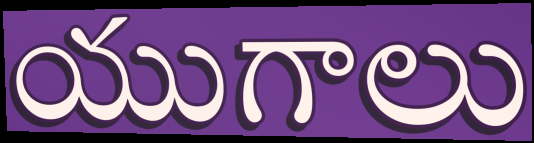
యుగాలు